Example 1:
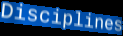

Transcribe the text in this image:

Disciplines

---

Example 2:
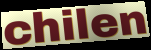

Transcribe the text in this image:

chilen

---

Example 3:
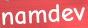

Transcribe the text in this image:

namdev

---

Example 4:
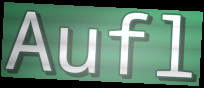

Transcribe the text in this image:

Aufl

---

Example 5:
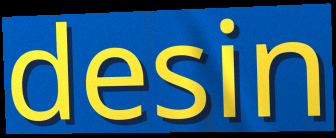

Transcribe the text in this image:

desin